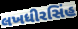
લખધીરસિંહ